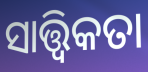
ସାତ୍ତ୍ବିକତା